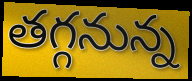
తగ్గనున్న